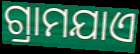
ଗ୍ରାମଯାଏ